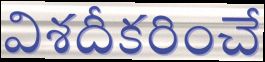
విశదీకరించే